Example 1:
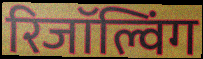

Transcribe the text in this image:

रिजॉल्विंग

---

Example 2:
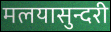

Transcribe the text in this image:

मलयासुन्दरी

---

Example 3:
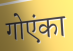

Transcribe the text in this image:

गोएंका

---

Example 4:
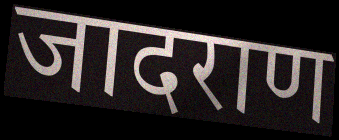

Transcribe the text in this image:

जादराण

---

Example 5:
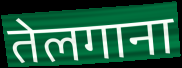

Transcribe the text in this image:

तेलगाना